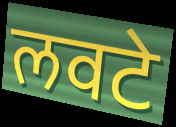
लवटे